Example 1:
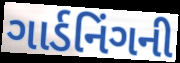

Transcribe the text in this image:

ગાર્ડનિંગની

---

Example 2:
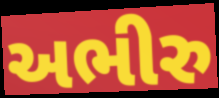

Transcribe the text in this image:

અભીરુ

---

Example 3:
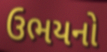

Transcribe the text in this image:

ઉભયનો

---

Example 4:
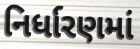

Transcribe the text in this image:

નિર્ધારણમાં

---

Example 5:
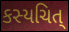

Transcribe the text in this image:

કસ્યચિત્